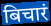
बिचारं